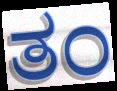
ತಂ